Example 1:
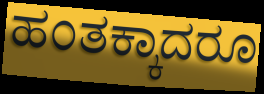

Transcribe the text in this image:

ಹಂತಕ್ಕಾದರೂ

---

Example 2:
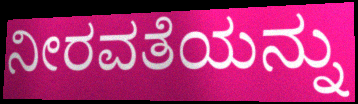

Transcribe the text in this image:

ನೀರವತೆಯನ್ನು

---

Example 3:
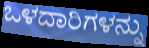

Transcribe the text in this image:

ಒಳದಾರಿಗಳನ್ನು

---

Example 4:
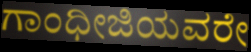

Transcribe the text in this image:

ಗಾಂಧೀಜಿಯವರೇ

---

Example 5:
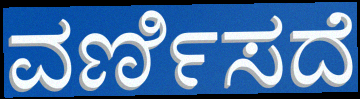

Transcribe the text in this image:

ವರ್ಣಿಸದೆ